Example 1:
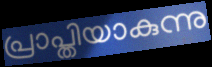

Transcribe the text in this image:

പ്രാപ്തിയാകുന്നു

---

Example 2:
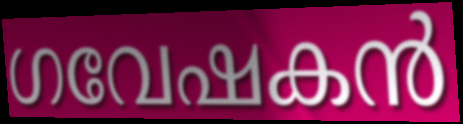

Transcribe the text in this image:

ഗവേഷകൻ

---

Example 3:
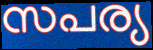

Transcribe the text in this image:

സപര്യ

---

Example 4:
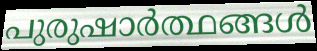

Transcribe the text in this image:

പുരുഷാർത്ഥങ്ങൾ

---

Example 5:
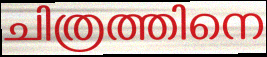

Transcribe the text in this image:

ചിത്രത്തിനെ